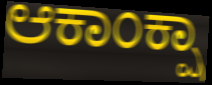
ಆಕಾಂಕ್ಷಾ